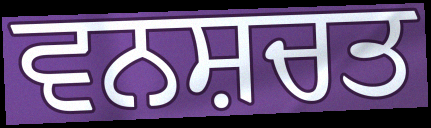
ਵਨਸ਼ਚਤ